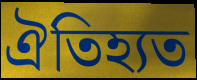
ঐতিহ্যত